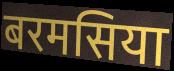
बरमसिया